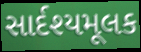
સાર્દશ્યમૂલક